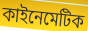
কাইনেমেটিক